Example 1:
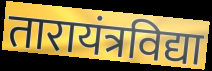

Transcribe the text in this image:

तारायंत्रविद्या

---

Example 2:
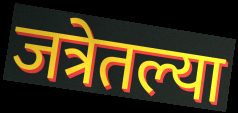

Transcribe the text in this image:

जत्रेतल्या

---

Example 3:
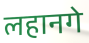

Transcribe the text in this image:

लहानगे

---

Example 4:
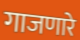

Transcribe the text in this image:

गाजणारे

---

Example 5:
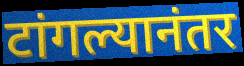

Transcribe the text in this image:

टांगल्यानंतर